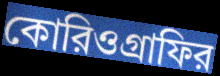
কোরিওগ্রাফির